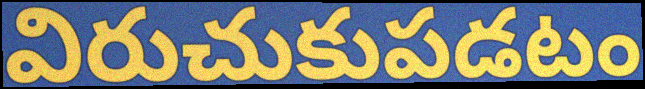
విరుచుకుపడటం